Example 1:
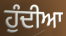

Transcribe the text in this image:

ਹੁੰਦੀਆ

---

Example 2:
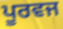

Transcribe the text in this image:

ਪੂਰਵਜ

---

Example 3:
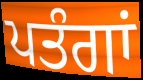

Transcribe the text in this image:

ਪਤੰਗਾਂ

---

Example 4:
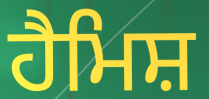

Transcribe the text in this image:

ਹੈਮਿਸ਼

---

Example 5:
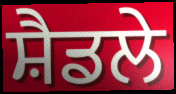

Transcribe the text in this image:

ਸ਼ੈਡਲੇ